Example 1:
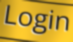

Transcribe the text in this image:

Login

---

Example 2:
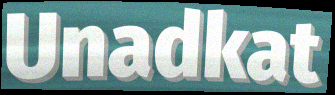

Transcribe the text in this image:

Unadkat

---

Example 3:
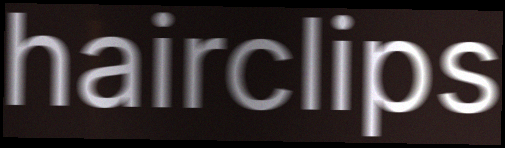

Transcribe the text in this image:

hairclips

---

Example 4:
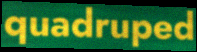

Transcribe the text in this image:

quadruped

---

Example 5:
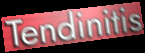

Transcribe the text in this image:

Tendinitis